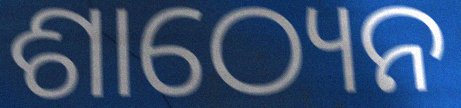
ଶାଠ୍ୟେନ